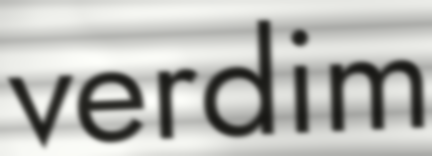
verdim